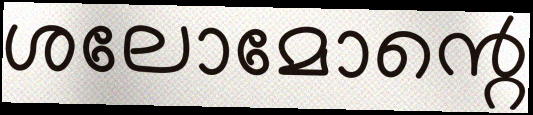
ശലോമോന്റെ